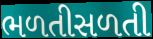
ભળતીસળતી